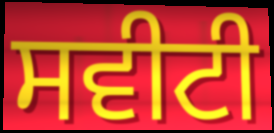
ਸਵੀਟੀ